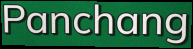
Panchang